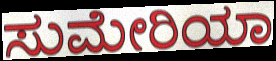
ಸುಮೇರಿಯಾ